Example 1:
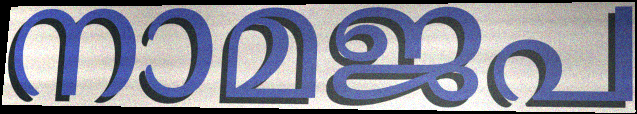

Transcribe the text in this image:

നാമജപ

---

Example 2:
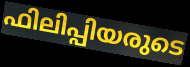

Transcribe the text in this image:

ഫിലിപ്പിയരുടെ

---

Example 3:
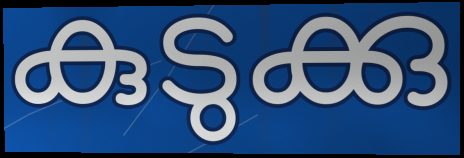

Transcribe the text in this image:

കുടുക്കു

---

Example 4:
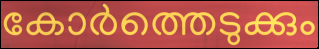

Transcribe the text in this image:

കോർത്തെടുക്കും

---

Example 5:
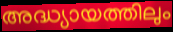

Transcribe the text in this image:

അദ്ധ്യായത്തിലും